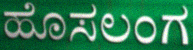
ಹೊಸಲಂಗ